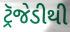
ટ્રૅજેડીથી